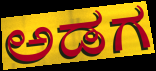
ಅಡಗ